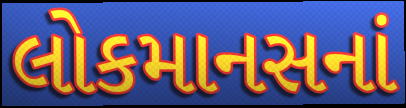
લોકમાનસનાં